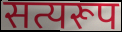
सत्यरूप